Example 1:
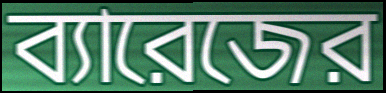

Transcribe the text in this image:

ব্যারেজের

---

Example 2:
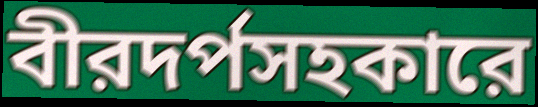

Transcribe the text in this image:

বীরদর্পসহকারে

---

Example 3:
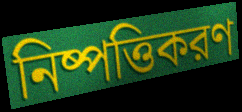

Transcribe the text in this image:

নিষ্পত্তিকরণ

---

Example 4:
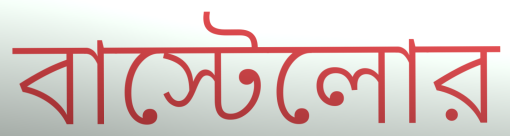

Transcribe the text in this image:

বাস্টেলোর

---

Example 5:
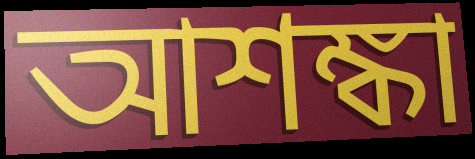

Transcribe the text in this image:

আশঙ্কা